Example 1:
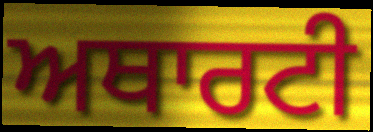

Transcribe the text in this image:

ਅਥਾਰਟੀ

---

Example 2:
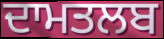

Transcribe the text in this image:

ਦਾਮਤਲਬ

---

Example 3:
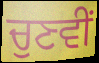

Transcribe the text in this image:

ਚੁਣਵੀਂ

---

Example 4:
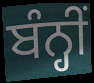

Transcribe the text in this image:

ਬੰਨ੍ਹੀਂ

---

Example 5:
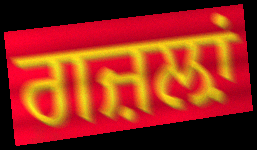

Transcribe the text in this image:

ਗਜ਼ਲ਼ਾਂ